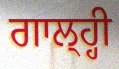
ਗਾਲ੍ਹ੍ਹੀ